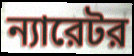
ন্যারেটর